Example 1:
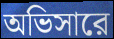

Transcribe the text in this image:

অভিসারে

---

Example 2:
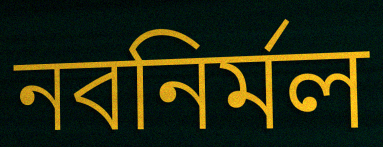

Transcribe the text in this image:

নবনির্মল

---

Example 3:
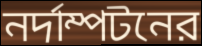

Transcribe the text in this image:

নর্দাম্পটনের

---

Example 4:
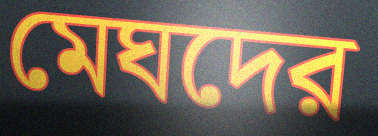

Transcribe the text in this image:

মেঘদের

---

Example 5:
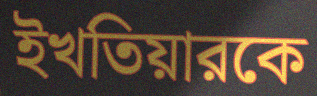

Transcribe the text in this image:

ইখতিয়ারকে